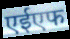
एईएफ